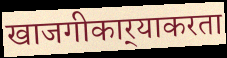
खाजगीकार्याकरता